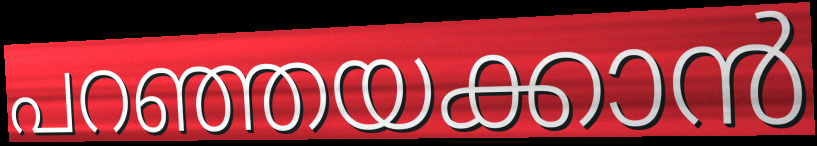
പറഞ്ഞയക്കാൻ